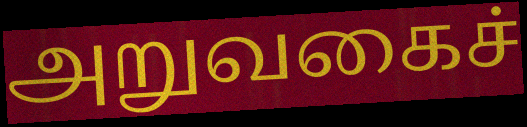
அறுவகைச்